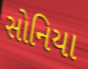
સોનિયા